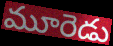
మూరెడు